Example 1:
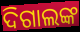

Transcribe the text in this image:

ଦିଗାଲଙ୍କ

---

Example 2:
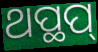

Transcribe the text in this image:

ଥପ୍ଥପ୍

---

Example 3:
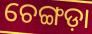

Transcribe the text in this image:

ଚେଙ୍ଗଡ଼ା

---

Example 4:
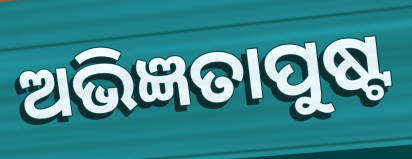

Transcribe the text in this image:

ଅଭିଜ୍ଞତାପୁଷ୍ଟ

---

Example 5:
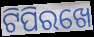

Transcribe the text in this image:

ଟିପିରଖେ